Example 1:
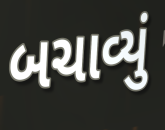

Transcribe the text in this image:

બચાવ્યું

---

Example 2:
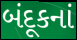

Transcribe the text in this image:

બંદૂકનાં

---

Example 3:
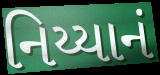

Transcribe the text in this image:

નિય્યાનં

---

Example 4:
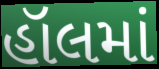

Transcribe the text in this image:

હૉલમાં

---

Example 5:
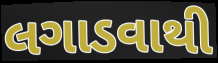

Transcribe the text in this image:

લગાડવાથી